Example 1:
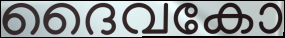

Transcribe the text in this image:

ദൈവകോ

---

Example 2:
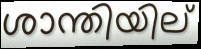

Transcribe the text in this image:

ശാന്തിയില്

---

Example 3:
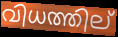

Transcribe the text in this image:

വിധത്തില്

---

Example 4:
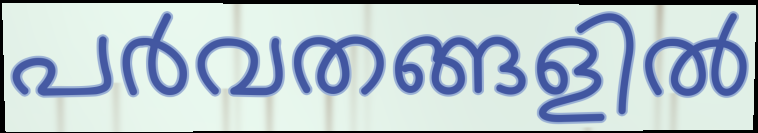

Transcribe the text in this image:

പർവതങ്ങളിൽ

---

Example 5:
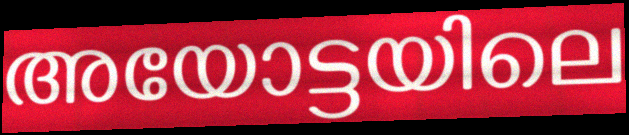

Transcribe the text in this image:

അയോട്ടയിലെ